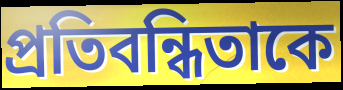
প্রতিবন্ধিতাকে